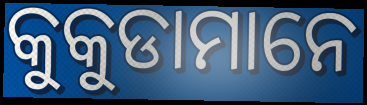
କୁକୁଡାମାନେ